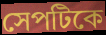
সেপটিকে